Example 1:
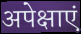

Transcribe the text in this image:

अपेक्षाएं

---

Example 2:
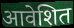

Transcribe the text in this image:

आवेशित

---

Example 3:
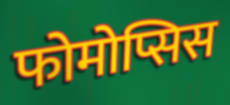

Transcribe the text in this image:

फोमोप्सिस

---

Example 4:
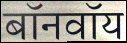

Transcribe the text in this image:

बॉनवॉय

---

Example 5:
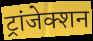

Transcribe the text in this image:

ट्रांजेक्शन